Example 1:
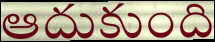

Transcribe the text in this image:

ఆదుకుంది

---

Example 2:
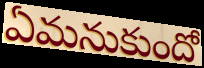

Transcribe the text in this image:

ఏమనుకుందో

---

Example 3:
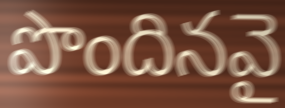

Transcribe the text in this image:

పొందినవై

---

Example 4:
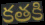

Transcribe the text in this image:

కతకి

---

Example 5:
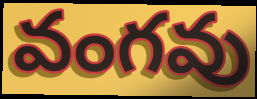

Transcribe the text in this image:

వంగవు